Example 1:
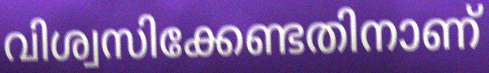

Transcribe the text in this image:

വിശ്വസിക്കേണ്ടതിനാണ്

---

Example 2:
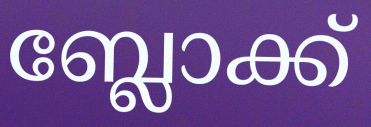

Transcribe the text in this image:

ബ്ലോക്ക്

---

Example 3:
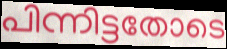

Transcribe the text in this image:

പിന്നിട്ടതോടെ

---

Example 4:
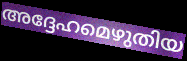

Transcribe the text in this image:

അദ്ദേഹമെഴുതിയ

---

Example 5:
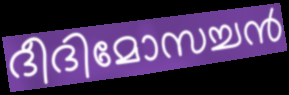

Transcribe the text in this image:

ദീദിമോസച്ചൻ